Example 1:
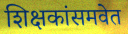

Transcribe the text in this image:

शिक्षकांसमवेत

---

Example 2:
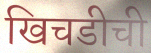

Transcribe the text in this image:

खिचडीची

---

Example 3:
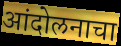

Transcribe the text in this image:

आंदोलनाचा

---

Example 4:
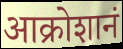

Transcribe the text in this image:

आक्रोशानं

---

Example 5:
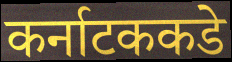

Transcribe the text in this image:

कर्नाटककडे